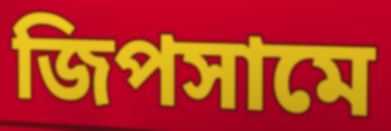
জিপসামে